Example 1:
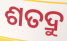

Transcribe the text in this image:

ଶତଦ୍ରୁ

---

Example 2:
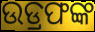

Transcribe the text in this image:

ଉଡ୍ରଫଙ୍କ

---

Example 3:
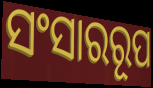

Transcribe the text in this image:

ସଂସାରରୂପ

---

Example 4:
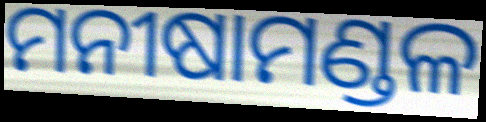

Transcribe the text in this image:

ମନୀଷାମଣ୍ଡଳ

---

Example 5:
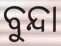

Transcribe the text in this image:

ବୁନ୍ଦା